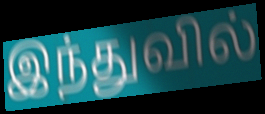
இந்துவில்